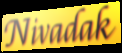
Nivadak